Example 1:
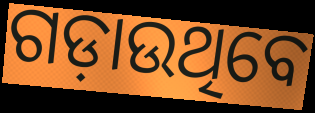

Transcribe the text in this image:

ଗଡ଼ାଉଥିବେ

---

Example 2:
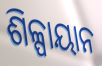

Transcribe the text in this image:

ଶିଳ୍ପାୟାନ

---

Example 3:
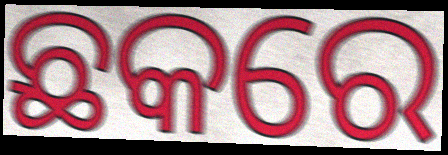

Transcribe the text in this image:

ଛକରେ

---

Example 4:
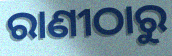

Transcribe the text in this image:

ରାଣୀଠାରୁ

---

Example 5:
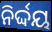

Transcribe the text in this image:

ନିର୍ଦ୍ଦୟ